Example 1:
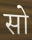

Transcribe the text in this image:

सो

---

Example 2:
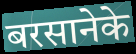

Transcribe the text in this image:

बरसानेके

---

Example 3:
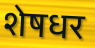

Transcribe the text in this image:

शेषधर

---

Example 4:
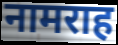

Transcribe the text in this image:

नामराह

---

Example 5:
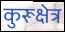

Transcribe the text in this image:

कुरूक्षेत्र